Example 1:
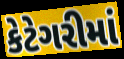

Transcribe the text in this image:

કેટેગરીમાં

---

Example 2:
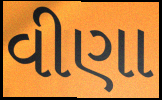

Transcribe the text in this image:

વીણા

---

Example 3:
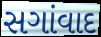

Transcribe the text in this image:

સગાંવાદ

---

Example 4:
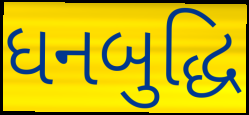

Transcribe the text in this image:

ધનબુદ્ધિ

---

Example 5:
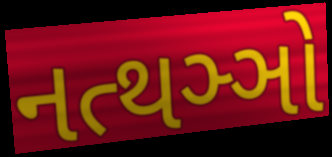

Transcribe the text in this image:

નત્થઞ્ઞો